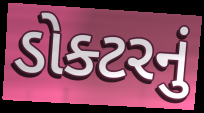
ડોક્ટરનું